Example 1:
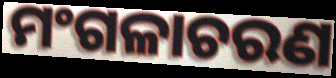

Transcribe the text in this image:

ମଂଗଳାଚରଣ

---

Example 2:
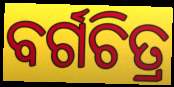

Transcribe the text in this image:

ବର୍ଗଚିତ୍ର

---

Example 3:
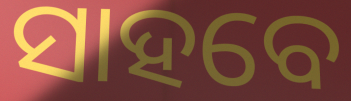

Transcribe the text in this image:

ସାହବେ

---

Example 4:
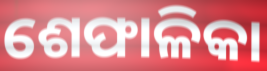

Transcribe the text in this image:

ଶେଫାଳିକା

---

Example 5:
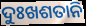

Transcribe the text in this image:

ଦୁଃଖଶତାନି